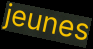
jeunes